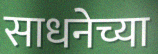
साधनेच्या